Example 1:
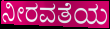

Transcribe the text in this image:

ನೀರವತೆಯ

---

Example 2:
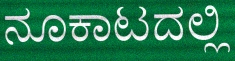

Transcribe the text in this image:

ನೂಕಾಟದಲ್ಲಿ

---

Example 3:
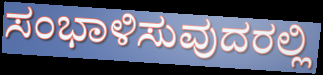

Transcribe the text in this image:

ಸಂಭಾಳಿಸುವುದರಲ್ಲಿ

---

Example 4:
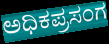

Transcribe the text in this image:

ಅಧಿಕಪ್ರಸಂಗ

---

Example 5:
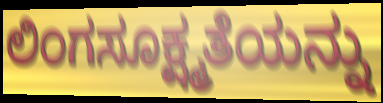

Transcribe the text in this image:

ಲಿಂಗಸೂಕ್ಷ್ಮತೆಯನ್ನು